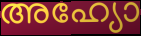
അഹ്യോ